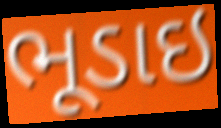
ભૂડાઇ